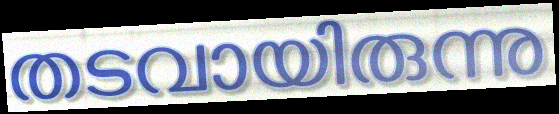
തടവായിരുന്നു